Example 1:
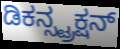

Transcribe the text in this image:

ಡಿಕನ್ಸ್ಟ್ರಕ್ಷನ್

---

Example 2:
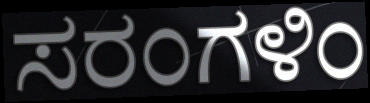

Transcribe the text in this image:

ಸರಂಗಳಿಂ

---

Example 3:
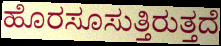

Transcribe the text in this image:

ಹೊರಸೂಸುತ್ತಿರುತ್ತದೆ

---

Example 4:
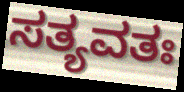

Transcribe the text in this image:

ಸತ್ಯವತಃ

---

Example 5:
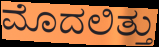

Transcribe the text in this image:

ಮೊದಲಿತ್ತು